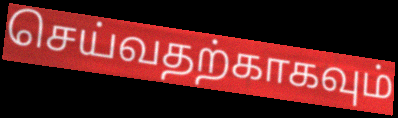
செய்வதற்காகவும்